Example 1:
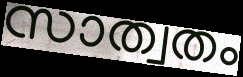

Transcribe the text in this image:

സാത്വതം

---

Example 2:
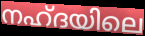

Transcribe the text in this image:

നഹ്ദയിലെ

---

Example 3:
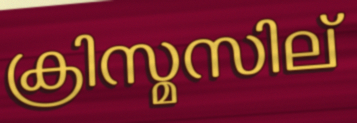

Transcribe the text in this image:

ക്രിസ്മസില്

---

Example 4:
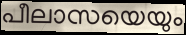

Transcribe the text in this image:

പീലാസയെയും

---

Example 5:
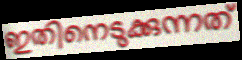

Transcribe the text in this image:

ഇതിനെടുക്കുന്നത്